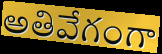
అతివేగంగా